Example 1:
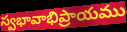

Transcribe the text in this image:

స్వభావాభిప్రాయము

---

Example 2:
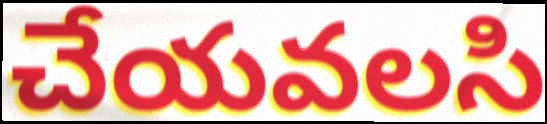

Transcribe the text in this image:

చేయవలసి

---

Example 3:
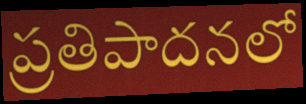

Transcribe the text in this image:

ప్రతిపాదనలో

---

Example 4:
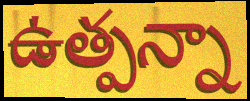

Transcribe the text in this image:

ఉత్పన్నా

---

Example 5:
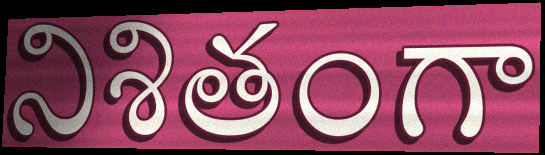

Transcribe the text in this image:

నిశితంగా